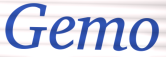
Gemo